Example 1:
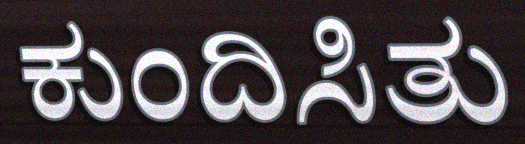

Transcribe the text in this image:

ಕುಂದಿಸಿತು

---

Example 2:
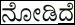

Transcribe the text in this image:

ನೋಡಿದೆ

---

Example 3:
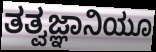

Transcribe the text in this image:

ತತ್ವಜ್ಞಾನಿಯೂ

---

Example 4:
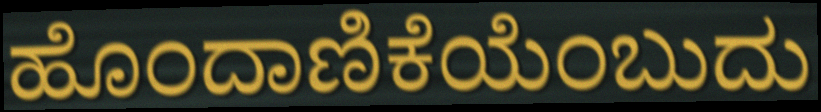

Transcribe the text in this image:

ಹೊಂದಾಣಿಕೆಯೆಂಬುದು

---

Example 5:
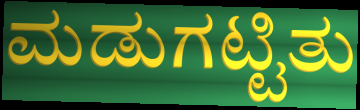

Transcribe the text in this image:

ಮಡುಗಟ್ಟಿತು